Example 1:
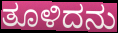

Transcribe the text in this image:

ತೂಳಿದನು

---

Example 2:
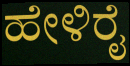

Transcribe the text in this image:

ಹೇಳಿರೈ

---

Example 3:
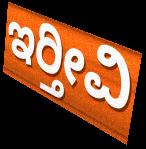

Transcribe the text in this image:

ಇರ‍್ತೀವಿ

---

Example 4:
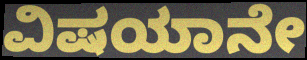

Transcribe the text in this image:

ವಿಷಯಾನೇ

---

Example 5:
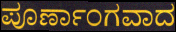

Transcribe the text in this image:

ಪೂರ್ಣಾಂಗವಾದ